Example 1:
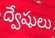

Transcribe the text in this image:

ద్వేషులు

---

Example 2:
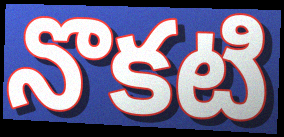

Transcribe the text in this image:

నొకటి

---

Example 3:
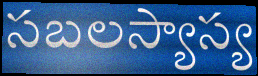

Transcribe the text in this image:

సబలస్యాస్య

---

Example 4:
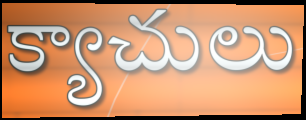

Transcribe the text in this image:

క్యాచులు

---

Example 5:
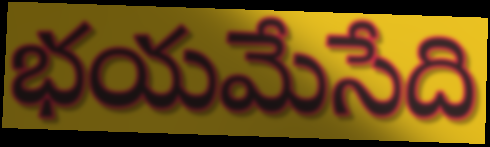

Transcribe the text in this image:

భయమేసేది